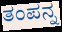
ತಂಪನ್ನ